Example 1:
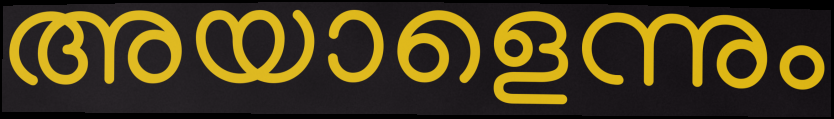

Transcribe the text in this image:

അയാളെന്നും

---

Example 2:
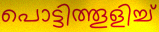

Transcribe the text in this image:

പൊട്ടിത്തൂളിച്ച്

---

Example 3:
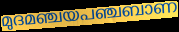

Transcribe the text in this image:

മുദമഞ്ചയപഞ്ചബാണ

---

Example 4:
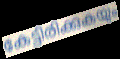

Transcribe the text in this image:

കേട്ടിരിക്കുകയും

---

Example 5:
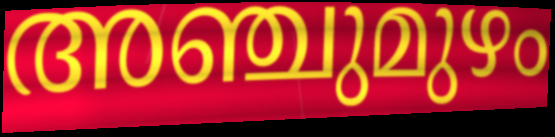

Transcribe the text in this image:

അഞ്ചുമുഴം